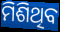
ମିଶିଥିବ